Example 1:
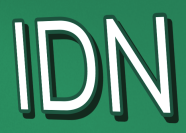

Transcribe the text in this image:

IDN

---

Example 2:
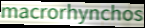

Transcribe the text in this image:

macrorhynchos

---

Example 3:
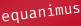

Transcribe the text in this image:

equanimus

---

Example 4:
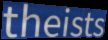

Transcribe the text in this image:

theists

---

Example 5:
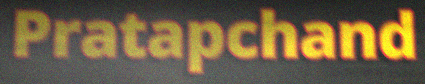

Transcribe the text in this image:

Pratapchand